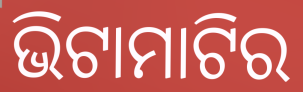
ଭିଟାମାଟିର